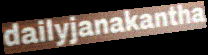
dailyjanakantha